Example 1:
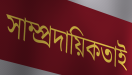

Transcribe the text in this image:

সাম্প্রদায়িকতাই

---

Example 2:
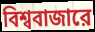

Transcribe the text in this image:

বিশ্ববাজারে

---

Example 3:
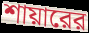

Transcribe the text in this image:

শায়ারের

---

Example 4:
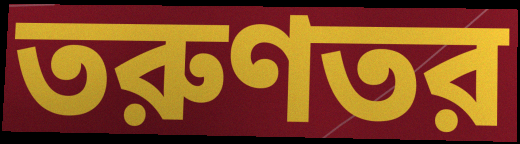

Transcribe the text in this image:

তরুণতর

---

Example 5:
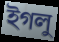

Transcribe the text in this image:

ইগলু